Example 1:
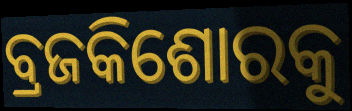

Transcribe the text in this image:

ବ୍ରଜକିଶୋରକୁ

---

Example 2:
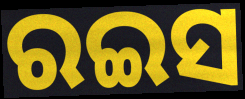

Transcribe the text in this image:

ରଇସ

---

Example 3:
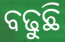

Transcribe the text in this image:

ବଢୁଛି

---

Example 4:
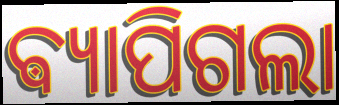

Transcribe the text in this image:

ଵ୍ୟାପିଗଲା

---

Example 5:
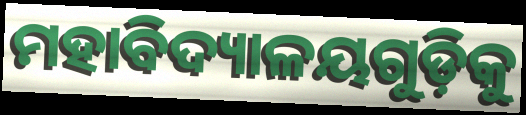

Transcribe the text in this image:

ମହାବିଦ୍ୟାଳୟଗୁଡ଼ିକୁ